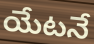
యేటనే